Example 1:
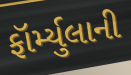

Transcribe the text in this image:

ફૉર્મ્યુલાની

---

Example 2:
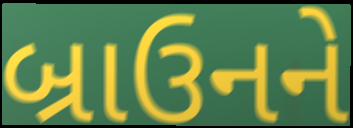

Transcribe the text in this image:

બ્રાઉનને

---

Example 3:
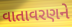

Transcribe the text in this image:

વાતાવરણને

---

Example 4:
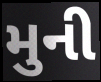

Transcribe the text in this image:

મુની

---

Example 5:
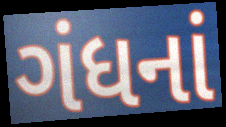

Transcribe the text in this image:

ગંધનાં